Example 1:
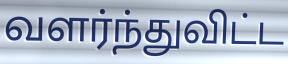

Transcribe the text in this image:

வளர்ந்துவிட்ட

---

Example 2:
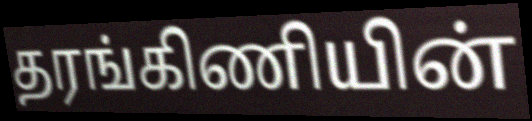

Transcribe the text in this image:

தரங்கிணியின்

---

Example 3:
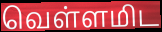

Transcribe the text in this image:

வெள்ளமிட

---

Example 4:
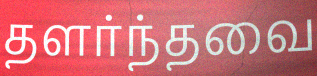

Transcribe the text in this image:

தளர்ந்தவை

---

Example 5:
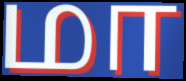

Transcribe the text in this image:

மா